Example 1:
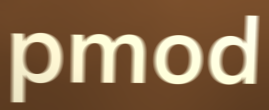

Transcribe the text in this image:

pmod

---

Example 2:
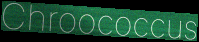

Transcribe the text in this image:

Chroococcus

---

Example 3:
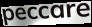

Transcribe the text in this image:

peccare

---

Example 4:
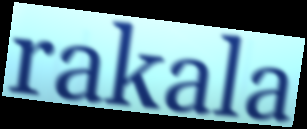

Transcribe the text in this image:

rakala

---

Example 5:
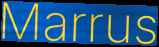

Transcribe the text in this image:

Marrus